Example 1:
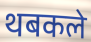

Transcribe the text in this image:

थबकले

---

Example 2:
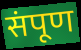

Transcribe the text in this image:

संपूण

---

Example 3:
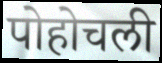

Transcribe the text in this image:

पोहोचली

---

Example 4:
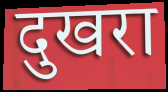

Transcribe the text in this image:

दुखरा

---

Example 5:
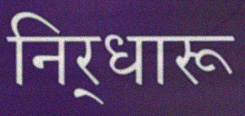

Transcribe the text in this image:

निर्धारू